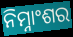
ନିମ୍ନାଂଶର